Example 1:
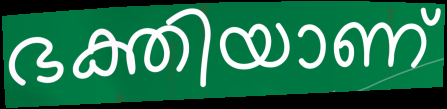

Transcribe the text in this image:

ഭക്തിയാണ്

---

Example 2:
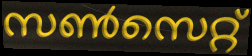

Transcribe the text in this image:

സൺസെറ്റ്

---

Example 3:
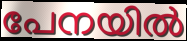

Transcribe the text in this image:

പേനയിൽ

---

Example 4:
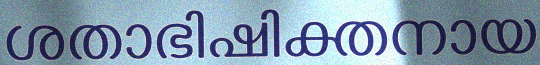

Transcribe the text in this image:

ശതാഭിഷിക്തനായ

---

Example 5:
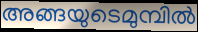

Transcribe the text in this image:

അങ്ങയുടെമുമ്പിൽ